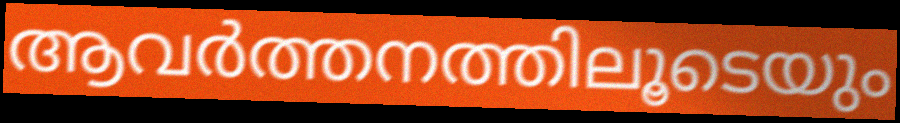
ആവർത്തനത്തിലൂടെയും